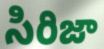
సిరిజా